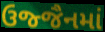
ઉજ્જૈનમાં